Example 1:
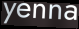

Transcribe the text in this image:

yenna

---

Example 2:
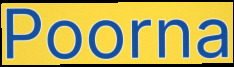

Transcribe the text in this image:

Poorna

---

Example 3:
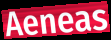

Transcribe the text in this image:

Aeneas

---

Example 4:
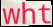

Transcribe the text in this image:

wht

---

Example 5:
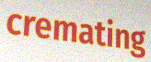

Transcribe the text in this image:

cremating